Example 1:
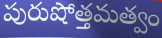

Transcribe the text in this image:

పురుషోత్తమత్వం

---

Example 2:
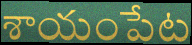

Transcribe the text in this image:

శాయంపేట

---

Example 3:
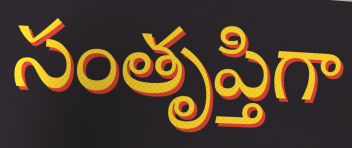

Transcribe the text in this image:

సంతృప్తిగా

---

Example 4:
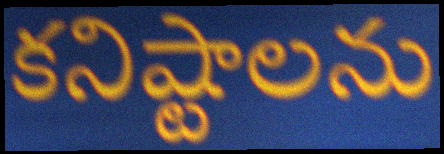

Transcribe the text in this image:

కనిష్టాలను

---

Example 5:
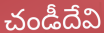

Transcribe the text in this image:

చండీదేవి